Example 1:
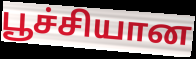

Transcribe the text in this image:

பூச்சியான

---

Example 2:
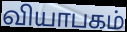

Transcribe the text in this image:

வியாபகம்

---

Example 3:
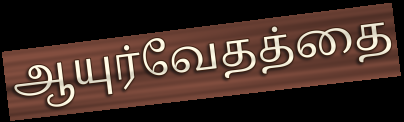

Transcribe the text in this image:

ஆயுர்வேதத்தை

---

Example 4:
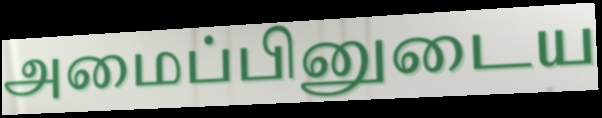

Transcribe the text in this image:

அமைப்பினுடைய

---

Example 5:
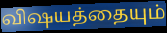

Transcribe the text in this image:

விஷயத்தையும்